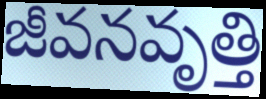
జీవనవృత్తి